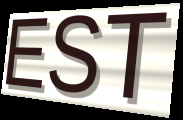
EST